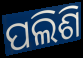
ପଲିଶି